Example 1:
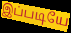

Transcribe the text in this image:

இப்படியே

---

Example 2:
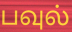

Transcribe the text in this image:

பவுல்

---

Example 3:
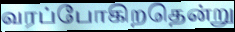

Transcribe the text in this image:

வரப்போகிறதென்று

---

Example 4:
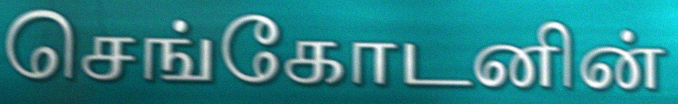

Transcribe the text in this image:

செங்கோடனின்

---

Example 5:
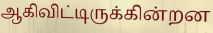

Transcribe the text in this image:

ஆகிவிட்டிருக்கின்றன